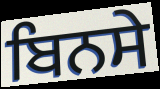
ਬਿਨਸੇ